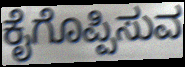
ಕೈಗೊಪ್ಪಿಸುವ